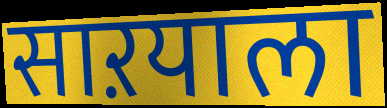
साऱयाला